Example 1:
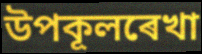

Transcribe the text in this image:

উপকূলৰেখা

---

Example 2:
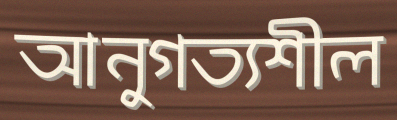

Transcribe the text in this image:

আনুগত্যশীল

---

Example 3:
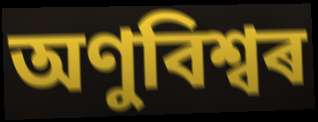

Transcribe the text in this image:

অণুবিশ্বৰ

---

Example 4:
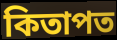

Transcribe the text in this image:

কিতাপত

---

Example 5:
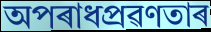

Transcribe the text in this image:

অপৰাধপ্ৰৱণতাৰ